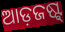
ଆଡ଼ଜଷ୍ଟ୍